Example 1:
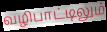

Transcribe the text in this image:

வழிபாட்டிலும்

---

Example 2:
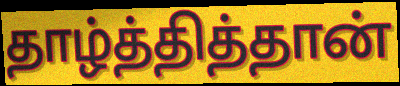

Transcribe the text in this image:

தாழ்த்தித்தான்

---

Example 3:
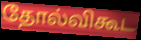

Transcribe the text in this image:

தோல்விகூட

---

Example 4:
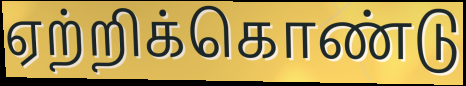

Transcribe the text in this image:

ஏற்றிக்கொண்டு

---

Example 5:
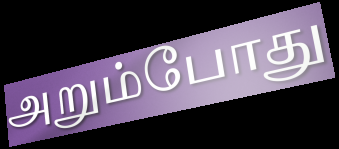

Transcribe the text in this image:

அறும்போது